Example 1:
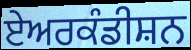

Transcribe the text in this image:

ਏਅਰਕੰਡੀਸ਼ਨ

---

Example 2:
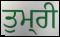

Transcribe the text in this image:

ਤੁਮ੍‍ਰੀ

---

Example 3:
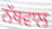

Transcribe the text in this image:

ਨੱਥਵਾਲ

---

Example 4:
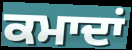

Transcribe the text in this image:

ਕਮਾਦਾਂ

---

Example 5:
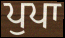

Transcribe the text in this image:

ਪੁਪਾ